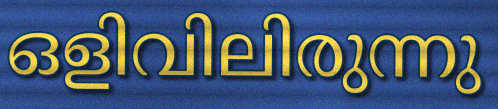
ഒളിവിലിരുന്നു